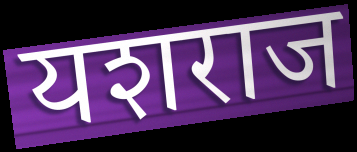
यशराज